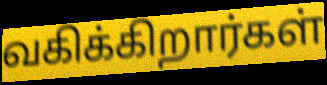
வகிக்கிறார்கள்